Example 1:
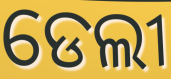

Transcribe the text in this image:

ଡେଲୀ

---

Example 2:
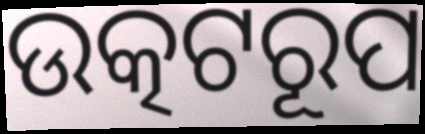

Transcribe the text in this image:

ଉତ୍କଟରୂପ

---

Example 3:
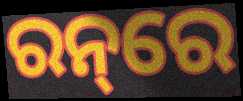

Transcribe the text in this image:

ରନ୍‌ରେ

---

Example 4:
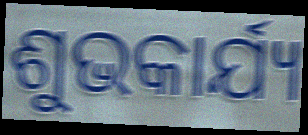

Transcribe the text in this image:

ଶୁଭକାର୍ଯ୍ୟ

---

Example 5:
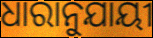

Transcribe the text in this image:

ଧାରାନୁଯାୟୀ